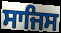
ਸਾਜਿਸ